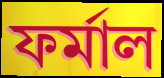
ফর্মাল